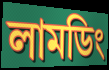
লামডিং